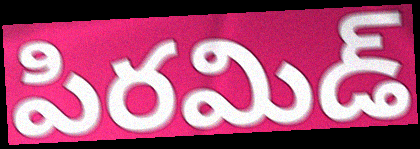
పిరమిడ్